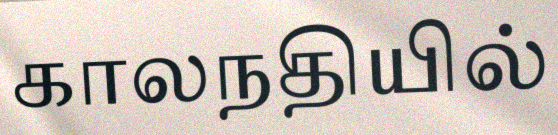
காலநதியில்